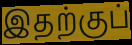
இதற்குப்